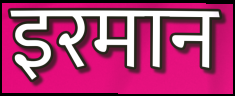
इरमान